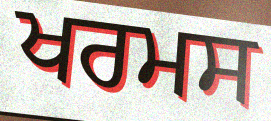
ਖਰਮਸ